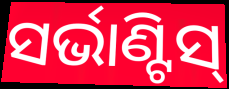
ସର୍ଭାଣ୍ଟିସ୍